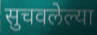
सुचवलेल्या